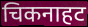
चिकनाहट